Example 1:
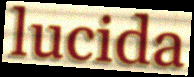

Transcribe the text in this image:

lucida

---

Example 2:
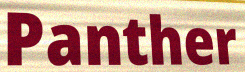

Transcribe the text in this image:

Panther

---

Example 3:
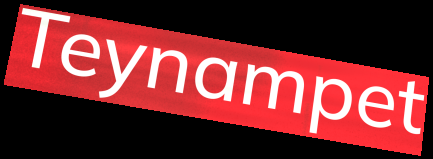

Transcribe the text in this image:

Teynampet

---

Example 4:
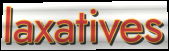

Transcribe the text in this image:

laxatives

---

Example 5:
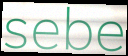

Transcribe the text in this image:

sebe